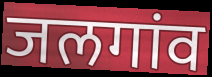
जलगांव